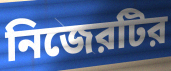
নিজেরটির